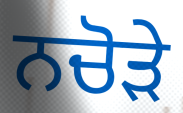
ਨਚੋੜੇ